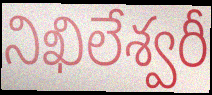
నిఖిలేశ్వరీ